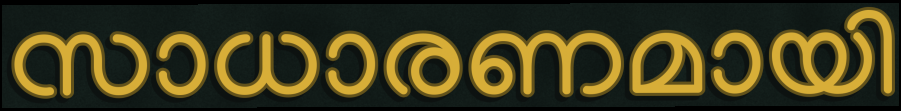
സാധാരണമായി